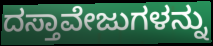
ದಸ್ತಾವೇಜುಗಳನ್ನು